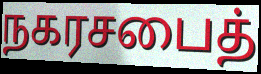
நகரசபைத்